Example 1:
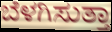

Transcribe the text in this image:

ಬೆಳಗಿಸುತ್ತಾ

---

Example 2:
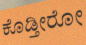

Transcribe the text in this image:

ಕೊಡ್ತೀರೋ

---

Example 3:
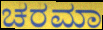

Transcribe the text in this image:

ಚರಮಾ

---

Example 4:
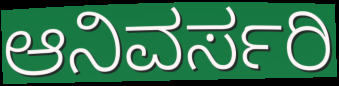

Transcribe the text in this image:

ಆನಿವರ್ಸರಿ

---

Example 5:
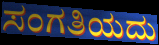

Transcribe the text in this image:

ಸಂಗತಿಯದು